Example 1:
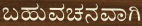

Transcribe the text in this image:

ಬಹುವಚನವಾಗಿ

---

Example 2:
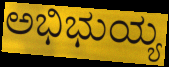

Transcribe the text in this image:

ಅಭಿಭುಯ್ಯ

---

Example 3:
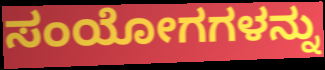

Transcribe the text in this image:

ಸಂಯೋಗಗಳನ್ನು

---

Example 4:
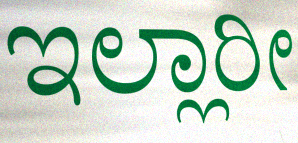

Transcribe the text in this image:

ಇಲ್ಲಾರೀ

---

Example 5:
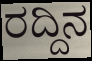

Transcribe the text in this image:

ರದ್ದಿನ